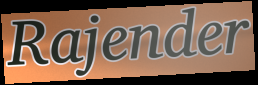
Rajender